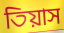
তিয়াস